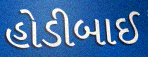
હોડીબાઈ